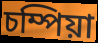
চম্পিয়া